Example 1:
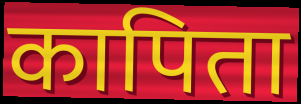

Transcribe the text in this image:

कापिता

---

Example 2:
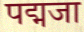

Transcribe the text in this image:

पद्मजा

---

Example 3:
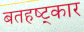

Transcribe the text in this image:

बतहष्ट्कार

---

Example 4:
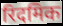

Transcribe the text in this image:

रिदमिक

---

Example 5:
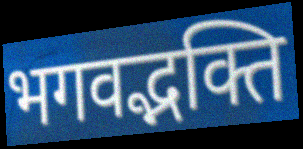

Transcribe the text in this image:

भगवद्भक्ति